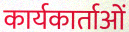
कार्यकार्ताओं